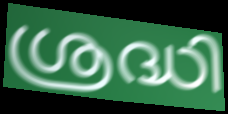
ശ്രദ്ധി